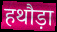
हथौड़ा